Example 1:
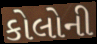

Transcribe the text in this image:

કોલોની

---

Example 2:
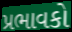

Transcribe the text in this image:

પ્રભાવકો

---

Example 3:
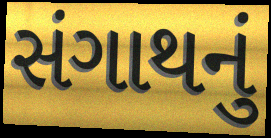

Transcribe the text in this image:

સંગાથનું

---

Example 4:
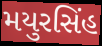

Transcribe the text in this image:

મયુરસિંહ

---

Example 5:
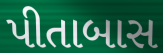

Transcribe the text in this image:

પીતાબાસ